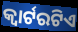
କ୍ୱାର୍ଟରଟିଏ